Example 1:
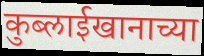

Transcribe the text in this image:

कुब्लाईखानाच्या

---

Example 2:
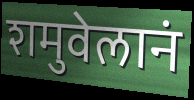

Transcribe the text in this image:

शमुवेलानं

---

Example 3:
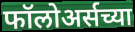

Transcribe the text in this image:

फॉलोअर्सच्या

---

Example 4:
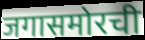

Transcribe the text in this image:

जगासमोरची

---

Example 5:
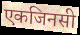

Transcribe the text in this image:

एकजिनसी